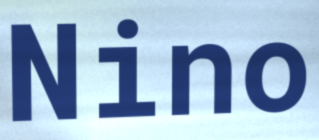
Nino